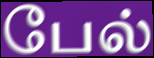
பேல்